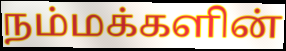
நம்மக்களின்